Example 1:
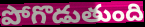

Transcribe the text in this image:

పోగొడుతుంది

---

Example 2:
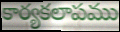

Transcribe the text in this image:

కార్యకలాపము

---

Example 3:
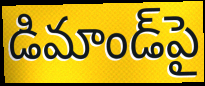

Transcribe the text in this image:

డిమాండ్‌పై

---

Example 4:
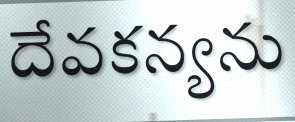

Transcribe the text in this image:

దేవకన్యను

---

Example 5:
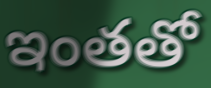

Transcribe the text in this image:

ఇంతతో